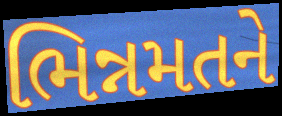
ભિન્નમતને